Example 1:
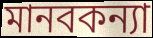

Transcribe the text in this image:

মানবকন্যা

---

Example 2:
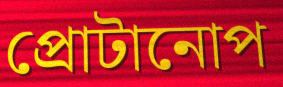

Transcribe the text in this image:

প্রোটানোপ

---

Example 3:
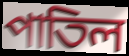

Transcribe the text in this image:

পাতিল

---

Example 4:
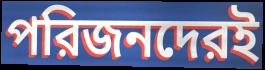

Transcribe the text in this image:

পরিজনদেরই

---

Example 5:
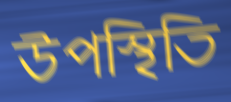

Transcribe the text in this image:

উপস্থিতি